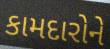
કામદારોને